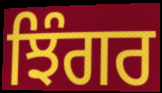
ਝਿੰਗਰ